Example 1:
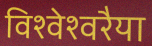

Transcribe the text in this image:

विश्वेश्वरैया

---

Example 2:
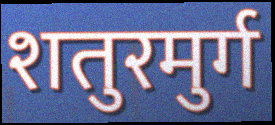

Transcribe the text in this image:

शतुरमुर्ग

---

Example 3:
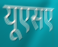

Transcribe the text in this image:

यूएसए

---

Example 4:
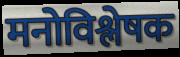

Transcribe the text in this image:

मनोविश्लेषक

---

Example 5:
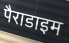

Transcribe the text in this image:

पैराडाइम